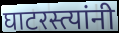
घाटरस्त्यांनी